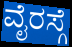
ವೈರಸ್ಗೆ